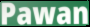
Pawan